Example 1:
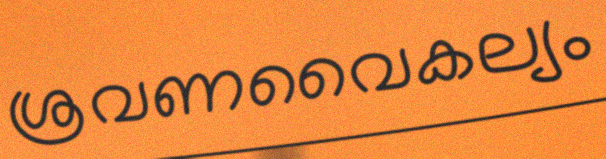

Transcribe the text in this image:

ശ്രവണവൈകല്യം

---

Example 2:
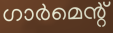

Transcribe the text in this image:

ഗാർമെന്റ്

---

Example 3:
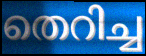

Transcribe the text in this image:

തെറിച്ച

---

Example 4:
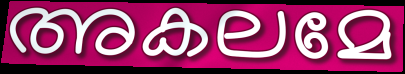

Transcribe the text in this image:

അകലമേ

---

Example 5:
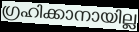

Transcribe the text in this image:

ഗ്രഹിക്കാനായില്ല